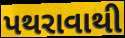
પથરાવાથી